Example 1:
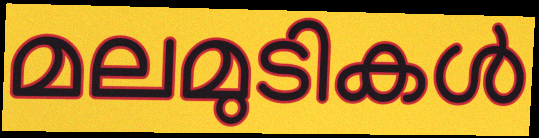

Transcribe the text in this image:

മലമുടികൾ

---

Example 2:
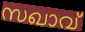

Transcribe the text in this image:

സഖാവ്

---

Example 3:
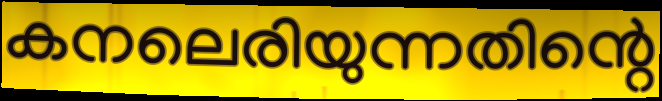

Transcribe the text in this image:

കനലെരിയുന്നതിന്റെ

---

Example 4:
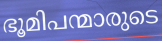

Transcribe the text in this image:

ഭൂമിപന്മാരുടെ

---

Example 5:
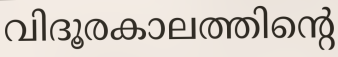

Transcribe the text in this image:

വിദൂരകാലത്തിന്റെ